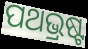
ପଥଭ୍ରଷ୍ଟ